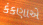
કંકણાએ